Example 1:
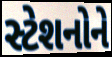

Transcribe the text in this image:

સ્ટેશનોને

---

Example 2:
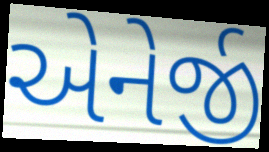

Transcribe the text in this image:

એનેર્જી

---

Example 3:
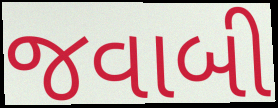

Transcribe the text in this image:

જવાબી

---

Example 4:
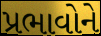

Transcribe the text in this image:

પ્રભાવોને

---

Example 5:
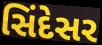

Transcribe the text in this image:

સિંદેસર